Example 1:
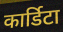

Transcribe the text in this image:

कार्डिटा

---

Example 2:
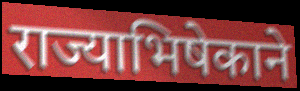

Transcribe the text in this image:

राज्याभिषेकाने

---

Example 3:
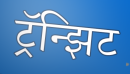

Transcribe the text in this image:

ट्रॅन्झिट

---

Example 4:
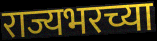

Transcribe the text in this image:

राज्यभरच्या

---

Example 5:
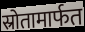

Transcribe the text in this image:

स्रोतामार्फत